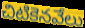
చిటికెనవేలు